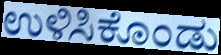
ಉಳಿಸಿಕೊಂಡು